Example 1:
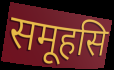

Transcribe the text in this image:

समूहसि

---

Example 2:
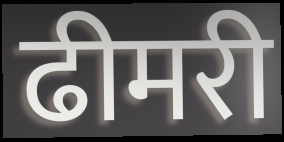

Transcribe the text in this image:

ढीमरी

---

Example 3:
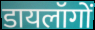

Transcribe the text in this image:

डायलॉगों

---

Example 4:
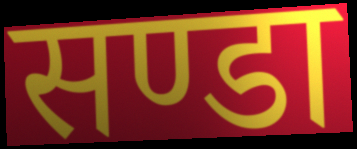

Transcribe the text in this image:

सण्डा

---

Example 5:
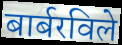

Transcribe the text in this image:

बार्बरविले